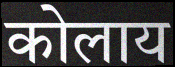
कोलाय